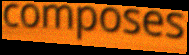
composes